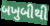
બખુબીથી